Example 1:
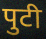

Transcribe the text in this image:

पुटी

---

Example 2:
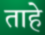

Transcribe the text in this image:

ताहे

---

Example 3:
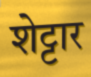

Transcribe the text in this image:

शेट्टार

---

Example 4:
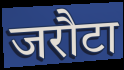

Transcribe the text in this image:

जरौटा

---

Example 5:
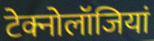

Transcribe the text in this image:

टेक्नोलॉजियां